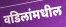
वडिलांमधील